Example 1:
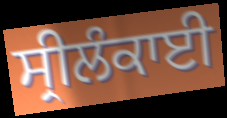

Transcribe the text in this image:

ਸ੍ਰੀਲੰਕਾਈ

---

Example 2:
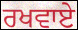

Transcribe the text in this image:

ਰਖਵਾਏ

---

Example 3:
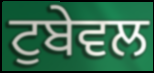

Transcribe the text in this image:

ਟੁਬੇਵਲ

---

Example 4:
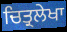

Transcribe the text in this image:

ਚਿਤ੍ਰਲੇਖਾ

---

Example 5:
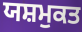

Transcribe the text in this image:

ਯਸ਼ਮੁਕਤ